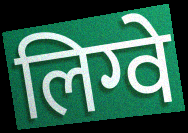
लिग्वे